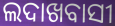
ଲଦାଖବାସୀ